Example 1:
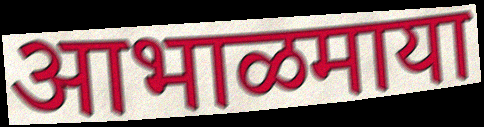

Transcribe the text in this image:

आभाळमाया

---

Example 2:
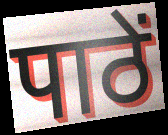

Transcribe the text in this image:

पाठें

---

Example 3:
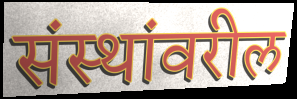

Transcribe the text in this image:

संस्थांवरील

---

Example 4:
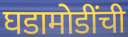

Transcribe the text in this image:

घडामोडींची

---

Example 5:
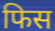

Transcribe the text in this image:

फिस